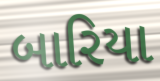
બારિયા